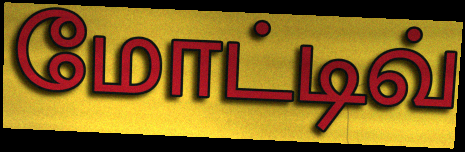
மோட்டிவ்